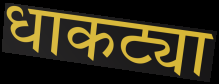
धाकट्या